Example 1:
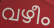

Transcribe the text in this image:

വഴീം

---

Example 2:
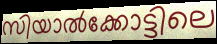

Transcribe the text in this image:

സിയാൽക്കോട്ടിലെ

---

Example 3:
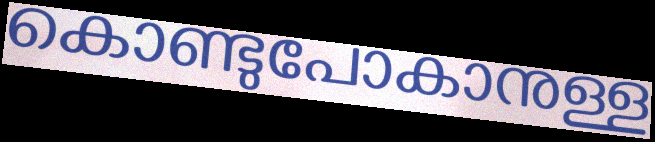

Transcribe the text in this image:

കൊണ്ടുപോകാനുള്ള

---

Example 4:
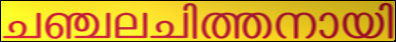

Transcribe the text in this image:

ചഞ്ചലചിത്തനായി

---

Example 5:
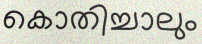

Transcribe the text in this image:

കൊതിച്ചാലും